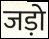
जड़ो